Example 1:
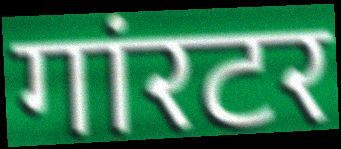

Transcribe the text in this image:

गांरटर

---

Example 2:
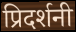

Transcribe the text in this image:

प्रिदर्शनी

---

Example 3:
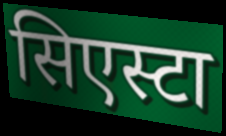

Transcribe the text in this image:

सिएस्टा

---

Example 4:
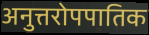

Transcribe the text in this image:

अनुत्तरोपपातिक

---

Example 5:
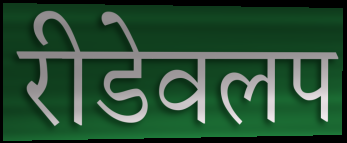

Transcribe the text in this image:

रीडेवलप